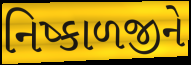
નિષ્કાળજીને